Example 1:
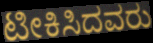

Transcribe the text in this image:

ಟೀಕಿಸಿದವರು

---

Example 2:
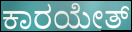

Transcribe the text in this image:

ಕಾರಯೇತ್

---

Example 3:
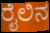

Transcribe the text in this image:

ರೈಲಿನ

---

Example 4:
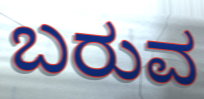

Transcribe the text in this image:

ಬರುವ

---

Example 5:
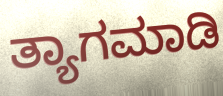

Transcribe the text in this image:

ತ್ಯಾಗಮಾಡಿ